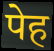
पेह